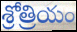
శ్రోత్రియం